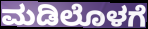
ಮಡಿಲೊಳಗೆ